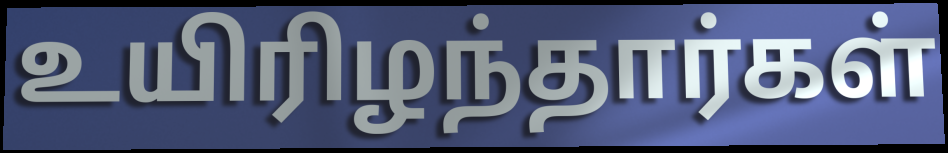
உயிரிழந்தார்கள்